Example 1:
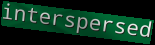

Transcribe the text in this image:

interspersed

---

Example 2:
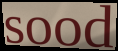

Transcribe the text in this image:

sood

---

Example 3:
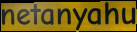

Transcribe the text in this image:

netanyahu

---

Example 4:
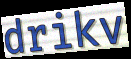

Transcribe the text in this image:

drikv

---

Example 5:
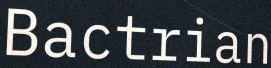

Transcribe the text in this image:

Bactrian